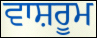
ਵਾਸ਼ਰੂਮ